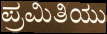
ಪ್ರಮಿತಿಯು